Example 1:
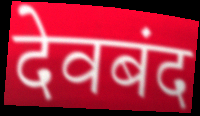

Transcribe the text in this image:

देवबंद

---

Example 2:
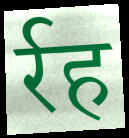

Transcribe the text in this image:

र्रह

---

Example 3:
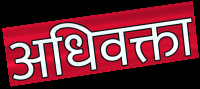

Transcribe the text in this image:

अधिवक्ता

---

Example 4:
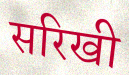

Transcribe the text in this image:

सरिखी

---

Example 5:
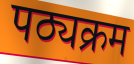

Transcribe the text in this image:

पठ्यक्रम